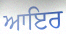
ਆਇਰ